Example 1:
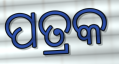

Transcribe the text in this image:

ପତ୍ରକ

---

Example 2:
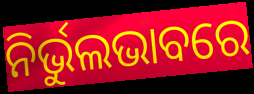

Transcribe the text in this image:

ନିର୍ଭୁଲଭାବରେ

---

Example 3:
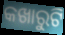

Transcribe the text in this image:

କଖାରୁଟି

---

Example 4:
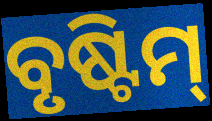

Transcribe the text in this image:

ବୃଷ୍ଟିମ୍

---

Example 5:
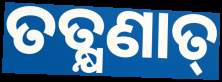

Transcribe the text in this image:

ତତ୍କ୍ଷଣାତ୍